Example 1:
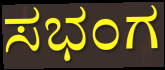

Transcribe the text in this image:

ಸಭಂಗ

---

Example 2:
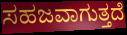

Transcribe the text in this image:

ಸಹಜವಾಗುತ್ತದೆ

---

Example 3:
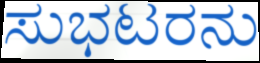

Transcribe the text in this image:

ಸುಭಟರನು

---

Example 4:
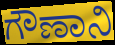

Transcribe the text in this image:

ಗೌಣಾನಿ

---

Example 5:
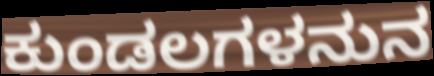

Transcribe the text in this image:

ಕುಂಡಲಗಳನುನ